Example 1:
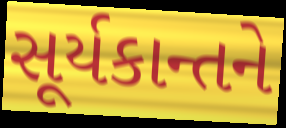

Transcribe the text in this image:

સૂર્યકાન્તને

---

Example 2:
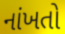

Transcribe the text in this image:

નાંખતો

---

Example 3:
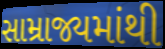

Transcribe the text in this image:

સામ્રાજ્યમાંથી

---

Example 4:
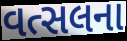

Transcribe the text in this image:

વત્સલના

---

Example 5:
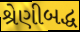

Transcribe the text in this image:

શ્રેણીબદ્ધ